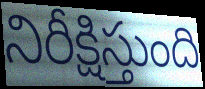
నిరీక్షిస్తుంది